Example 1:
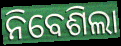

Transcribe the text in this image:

ନିବେଶିଲା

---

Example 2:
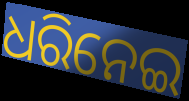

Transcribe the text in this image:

ଧରିନେଇ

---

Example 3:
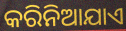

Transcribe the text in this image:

କରିନିଆଯାଏ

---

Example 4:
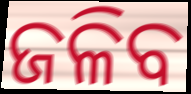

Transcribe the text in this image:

ଜଳିବ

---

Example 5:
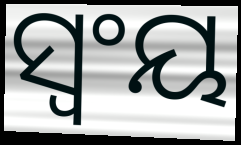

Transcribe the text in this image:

ସ୍ୱଂୟ